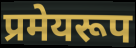
प्रमेयरूप